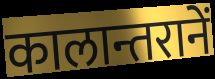
कालान्तरानें